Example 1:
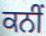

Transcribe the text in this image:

ਕਨੀਂ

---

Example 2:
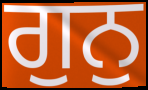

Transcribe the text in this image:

ਗੁਨੁ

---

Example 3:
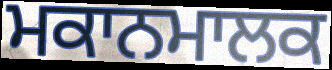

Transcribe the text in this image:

ਮਕਾਨਮਾਲਕ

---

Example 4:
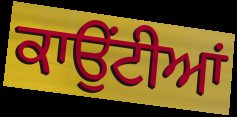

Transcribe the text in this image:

ਕਾਉਂਟੀਆਂ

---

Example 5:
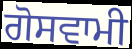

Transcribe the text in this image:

ਗੋਸਵਾਮੀ